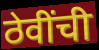
ठेवींची